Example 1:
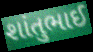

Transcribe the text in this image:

શાંતુભાઈ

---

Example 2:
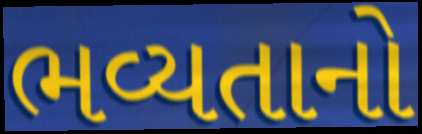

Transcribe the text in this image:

ભવ્યતાનો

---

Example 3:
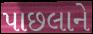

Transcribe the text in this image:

પાછલાને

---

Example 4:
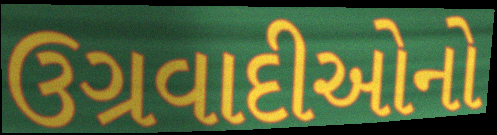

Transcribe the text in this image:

ઉગ્રવાદીઓનો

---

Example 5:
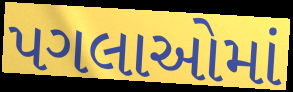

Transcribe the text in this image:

પગલાઓમાં